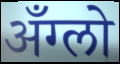
अँग्लो